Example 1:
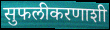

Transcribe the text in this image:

सुफलीकरणाशी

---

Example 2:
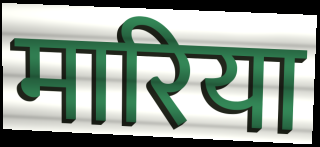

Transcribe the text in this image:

मारिया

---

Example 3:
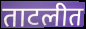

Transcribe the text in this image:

ताटलीत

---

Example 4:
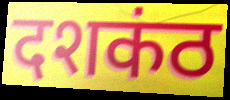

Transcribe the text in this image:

दशकंठ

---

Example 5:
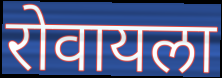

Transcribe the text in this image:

रोवायला